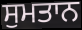
ਸੁਮਤਾਨ